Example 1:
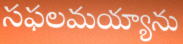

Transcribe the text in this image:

సఫలమయ్యాను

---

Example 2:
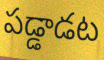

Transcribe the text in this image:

పడ్డాడట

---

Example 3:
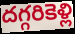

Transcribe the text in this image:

దగ్గరికెళ్లి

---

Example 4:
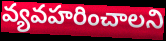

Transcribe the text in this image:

వ్యవహరించాలని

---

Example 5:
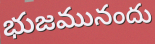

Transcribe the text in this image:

భుజమునందు